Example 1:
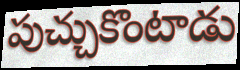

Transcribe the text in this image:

పుచ్చుకొంటాడు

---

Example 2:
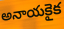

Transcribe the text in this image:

అనాయకైక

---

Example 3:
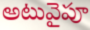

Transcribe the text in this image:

అటువైపూ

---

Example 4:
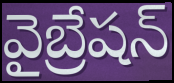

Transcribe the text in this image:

వైబ్రేషన్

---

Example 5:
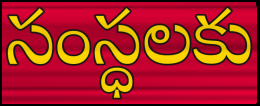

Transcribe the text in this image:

సంస్ధలకు